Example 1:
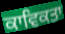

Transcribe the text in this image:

ਕਾਵਿਕਤਾ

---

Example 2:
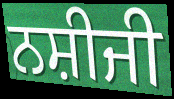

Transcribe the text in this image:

ਨਸ਼ੀਜੀ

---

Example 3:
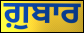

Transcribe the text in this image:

ਗ਼ੁਬਾਰ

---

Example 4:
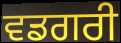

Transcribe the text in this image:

ਵਡਗਰੀ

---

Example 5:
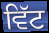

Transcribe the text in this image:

ਵਿੱਟ